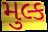
મુલ્ક